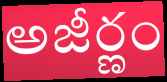
అజీర్ణం